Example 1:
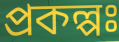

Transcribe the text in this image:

প্ৰকল্পঃ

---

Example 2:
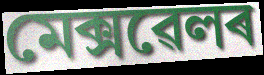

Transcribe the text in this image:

মেক্সৱেলৰ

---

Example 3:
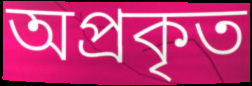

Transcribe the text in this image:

অপ্ৰকৃত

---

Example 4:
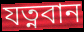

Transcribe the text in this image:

যত্নবান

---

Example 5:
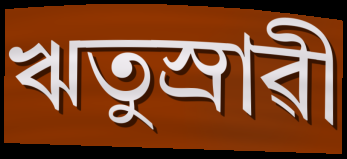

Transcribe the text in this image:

ঋতুস্ৰাৱী